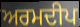
ਅਰਮਦੀਪ